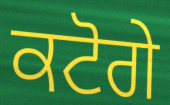
ਕਟੋਗੇ